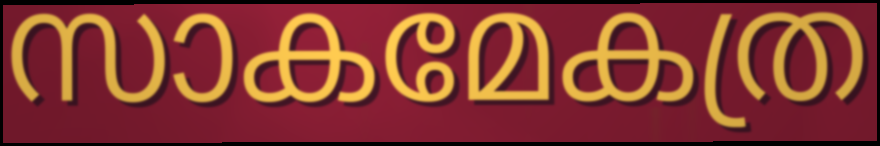
സാകമേകത്ര